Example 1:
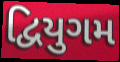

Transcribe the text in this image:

દ્વિયુગમ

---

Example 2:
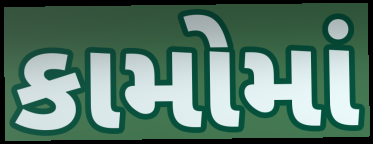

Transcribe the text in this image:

કામોમાં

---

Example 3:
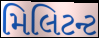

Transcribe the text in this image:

મિલિટન્ટ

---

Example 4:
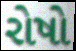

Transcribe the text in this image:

રોષો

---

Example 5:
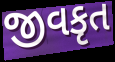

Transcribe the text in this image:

જીવકૃત